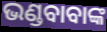
ଭଣ୍ଡବାବାଙ୍କ